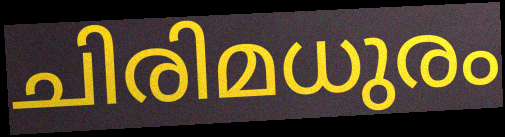
ചിരിമധുരം